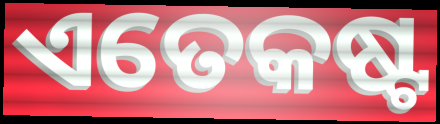
ଏତେକଷ୍ଟ